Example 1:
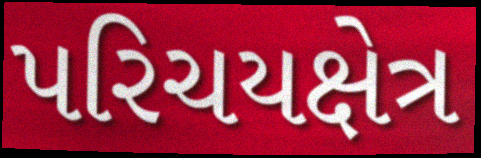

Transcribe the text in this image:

પરિચયક્ષેત્ર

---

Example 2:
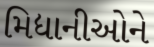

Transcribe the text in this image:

મિદ્યાનીઓને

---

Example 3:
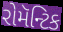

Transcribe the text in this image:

રોમૅન્ટિક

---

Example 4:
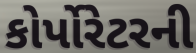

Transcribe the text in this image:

કોર્પોરેટરની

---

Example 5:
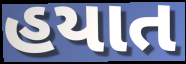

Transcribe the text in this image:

હયાત